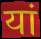
यां